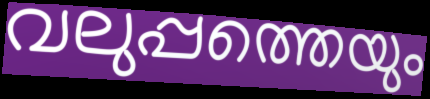
വലുപ്പത്തെയും